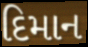
દિમાન